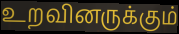
உறவினருக்கும்